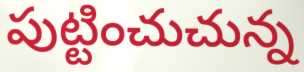
పుట్టించుచున్న